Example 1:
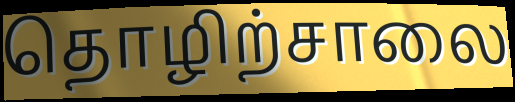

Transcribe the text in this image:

தொழிற்சாலை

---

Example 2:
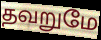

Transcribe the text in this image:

தவறுமே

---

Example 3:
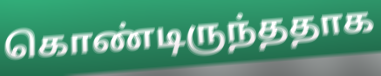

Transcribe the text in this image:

கொண்டிருந்ததாக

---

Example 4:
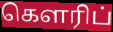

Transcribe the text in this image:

கௌரிப்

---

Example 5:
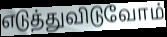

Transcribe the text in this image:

எடுத்துவிடுவோம்